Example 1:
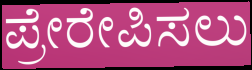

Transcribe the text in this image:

ಪ್ರೇರೇಪಿಸಲು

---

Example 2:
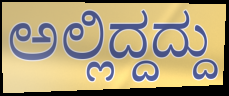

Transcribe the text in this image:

ಅಲ್ಲಿದ್ದದ್ದು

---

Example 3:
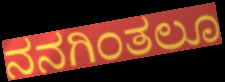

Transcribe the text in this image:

ನನಗಿಂತಲೂ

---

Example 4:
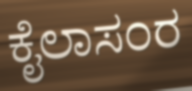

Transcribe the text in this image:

ಕೈಲಾಸಂರ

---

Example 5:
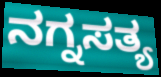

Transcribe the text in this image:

ನಗ್ನಸತ್ಯ